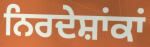
ਨਿਰਦੇਸ਼ਾਂਕਾਂ